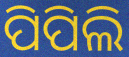
ପିପିଲି